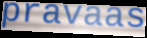
pravaas